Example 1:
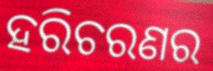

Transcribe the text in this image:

ହରିଚରଣର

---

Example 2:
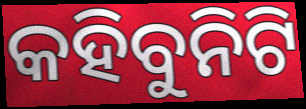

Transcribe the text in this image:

କହିବୁନିଟି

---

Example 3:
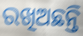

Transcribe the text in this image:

ରଖିଅଛନ୍ତି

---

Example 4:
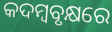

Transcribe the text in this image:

କଦମ୍ୱବୃକ୍ଷରେ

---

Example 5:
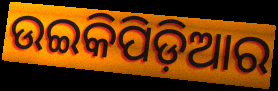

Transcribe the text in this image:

ଉଇକିପିଡ଼ିଆର